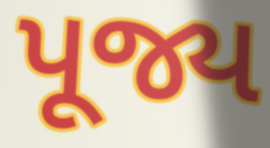
પૂજ્ય